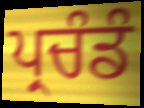
ਪ੍ਰਚੰਡੰ